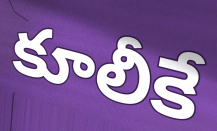
కూలీకే